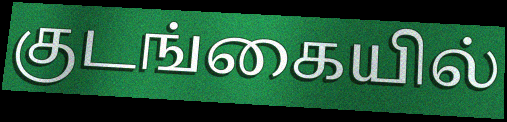
குடங்கையில்